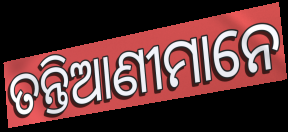
ତନ୍ତିଆଣୀମାନେ